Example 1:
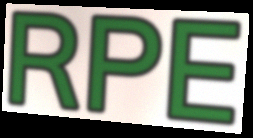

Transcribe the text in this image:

RPE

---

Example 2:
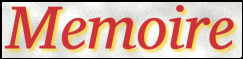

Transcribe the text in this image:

Memoire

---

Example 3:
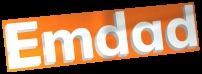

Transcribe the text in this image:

Emdad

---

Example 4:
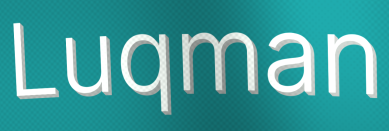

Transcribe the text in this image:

Luqman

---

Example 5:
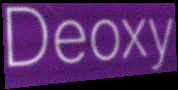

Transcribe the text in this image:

Deoxy